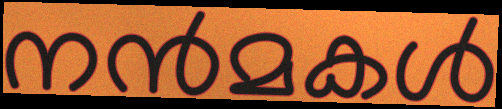
നൻമകൾ